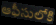
ఆఫీసులోకి